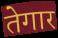
तेगार